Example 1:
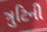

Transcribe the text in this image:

ત્રુટિની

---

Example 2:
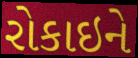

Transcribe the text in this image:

રોકાઇને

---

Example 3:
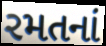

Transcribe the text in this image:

રમતનાં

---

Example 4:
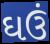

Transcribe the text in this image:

ઘઉં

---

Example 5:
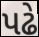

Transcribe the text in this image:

પઢે